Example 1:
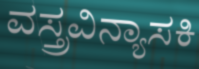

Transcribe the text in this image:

ವಸ್ತ್ರವಿನ್ಯಾಸಕಿ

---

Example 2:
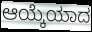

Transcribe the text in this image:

ಆಯ್ಕೆಯಾದ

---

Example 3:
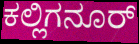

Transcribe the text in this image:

ಕಲ್ಲಿಗನೂರ್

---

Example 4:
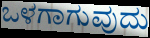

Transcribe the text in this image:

ಒಳಗಾಗುವುದು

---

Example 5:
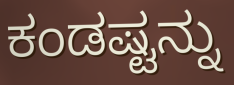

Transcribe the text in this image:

ಕಂಡಷ್ಟನ್ನು